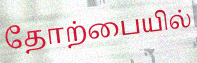
தோற்பையில்